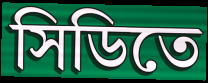
সিডিতে